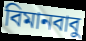
বিমানবাবু